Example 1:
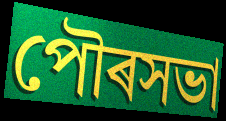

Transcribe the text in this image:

পৌৰসভা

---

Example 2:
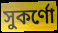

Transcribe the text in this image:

সুকৰ্ণো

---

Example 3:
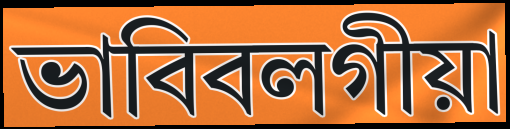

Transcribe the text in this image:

ভাবিবলগীয়া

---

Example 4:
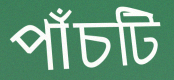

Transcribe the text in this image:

পাঁচটি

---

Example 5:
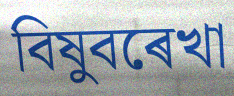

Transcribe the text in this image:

বিষুবৰেখা